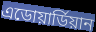
এডোয়ার্ডিয়ান